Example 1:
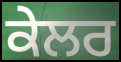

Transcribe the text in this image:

ਕੇਲਰ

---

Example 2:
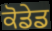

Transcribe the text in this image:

ਕੋਡੇਡ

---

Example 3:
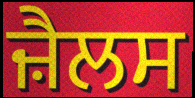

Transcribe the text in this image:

ਜ਼ੈਲਸ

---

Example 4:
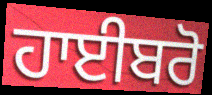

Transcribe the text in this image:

ਹਾਈਬਰੋ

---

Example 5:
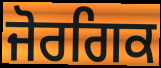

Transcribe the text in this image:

ਜੋਰਗਿਕ